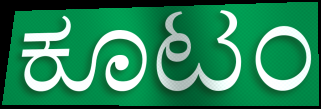
ಕೂಟಂ